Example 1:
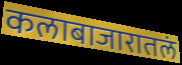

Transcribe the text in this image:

कलाबाजारातलं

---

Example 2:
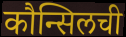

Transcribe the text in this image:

कौन्सिलची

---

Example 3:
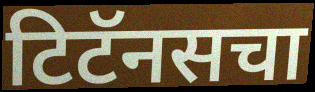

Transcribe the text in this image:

टिटॅनसचा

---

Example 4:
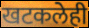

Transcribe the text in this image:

खटकलेही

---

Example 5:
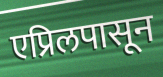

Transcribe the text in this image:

एप्रिलपासून